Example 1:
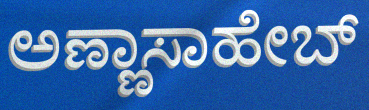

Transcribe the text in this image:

ಅಣ್ಣಾಸಾಹೇಬ್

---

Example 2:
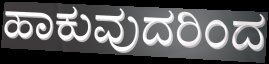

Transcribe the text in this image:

ಹಾಕುವುದರಿಂದ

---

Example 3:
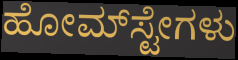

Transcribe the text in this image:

ಹೋಮ್‌ಸ್ಟೇಗಳು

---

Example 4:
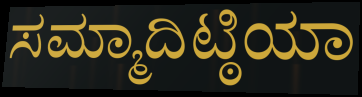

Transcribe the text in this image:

ಸಮ್ಮಾದಿಟ್ಠಿಯಾ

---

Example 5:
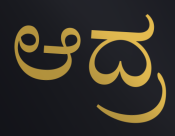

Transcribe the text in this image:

ಆದ್ರ